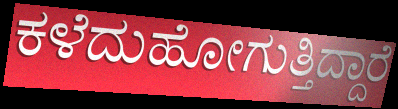
ಕಳೆದುಹೋಗುತ್ತಿದ್ದಾರೆ